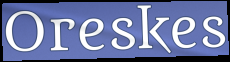
Oreskes